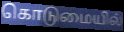
கொடுமையில்